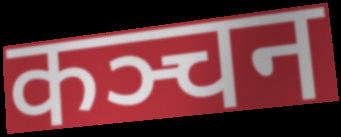
कञ्चन